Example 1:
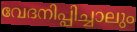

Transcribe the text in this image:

വേദനിപ്പിച്ചാലും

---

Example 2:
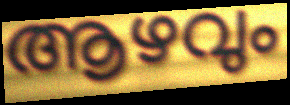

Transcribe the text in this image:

ആഴവും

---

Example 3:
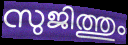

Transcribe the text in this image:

സുജിത്തും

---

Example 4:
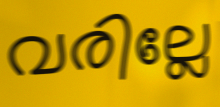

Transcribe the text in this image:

വരില്ലേ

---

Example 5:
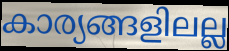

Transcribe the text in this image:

കാര്യങ്ങളിലല്ല